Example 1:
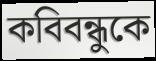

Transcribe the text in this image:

কবিবন্ধুকে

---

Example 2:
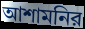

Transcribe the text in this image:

আশামনির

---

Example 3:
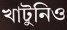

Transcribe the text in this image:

খাটুনিও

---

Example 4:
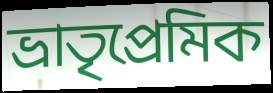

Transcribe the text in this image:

ভ্রাতৃপ্রেমিক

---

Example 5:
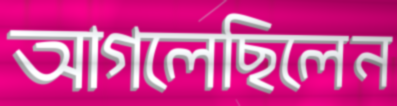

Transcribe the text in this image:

আগলেছিলেন